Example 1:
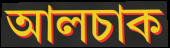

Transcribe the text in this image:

আলচাক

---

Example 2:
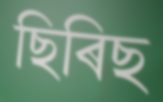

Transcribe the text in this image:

ছিৰিছ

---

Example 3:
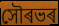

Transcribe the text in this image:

সৌৰভৰ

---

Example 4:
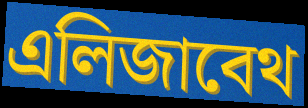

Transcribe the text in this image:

এলিজাবেথ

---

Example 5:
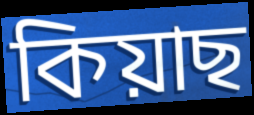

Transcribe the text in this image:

কিয়াছ